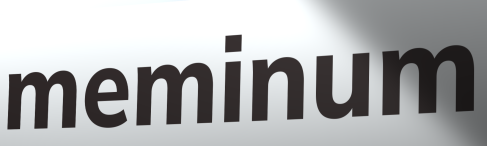
meminum